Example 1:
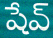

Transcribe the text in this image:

షేవ్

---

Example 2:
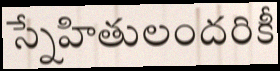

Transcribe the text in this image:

స్నేహితులందరికీ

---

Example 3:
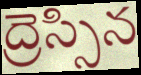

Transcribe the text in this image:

ద్రెస్సిన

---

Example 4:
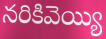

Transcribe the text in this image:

నరికివెయ్యి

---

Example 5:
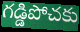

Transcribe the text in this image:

గడ్డిపోచకు